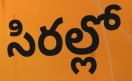
సిరల్లో